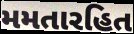
મમતારહિત